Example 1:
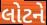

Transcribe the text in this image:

લોટને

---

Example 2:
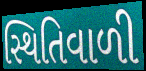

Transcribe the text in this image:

સ્થિતિવાળી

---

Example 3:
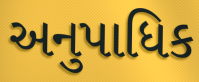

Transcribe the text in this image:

અનુપાધિક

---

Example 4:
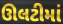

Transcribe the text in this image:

ઊલટીમાં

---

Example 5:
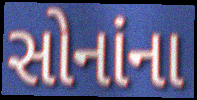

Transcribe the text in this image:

સોનાંના